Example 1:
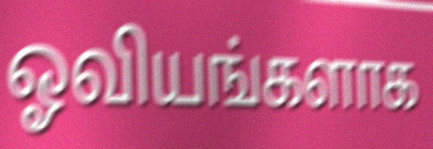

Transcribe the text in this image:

ஓவியங்களாக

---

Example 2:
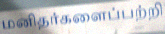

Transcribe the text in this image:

மனிதர்களைப்பற்றி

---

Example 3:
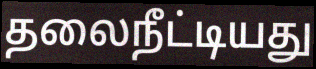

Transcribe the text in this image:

தலைநீட்டியது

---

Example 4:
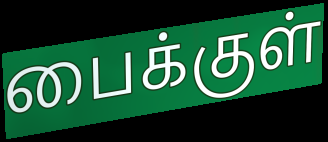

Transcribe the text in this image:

பைக்குள்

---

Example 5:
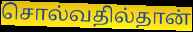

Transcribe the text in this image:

சொல்வதில்தான்